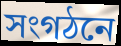
সংগঠনে